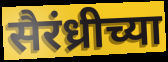
सैरंध्रीच्या